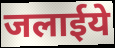
जलाईये